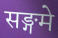
सङ्गमे